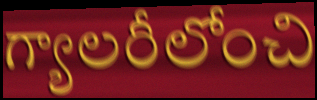
గ్యాలరీలోంచి